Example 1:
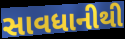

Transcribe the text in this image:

સાવધાનીથી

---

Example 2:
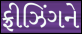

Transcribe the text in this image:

ફ્રીઝિંગને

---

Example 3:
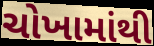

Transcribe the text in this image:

ચોખામાંથી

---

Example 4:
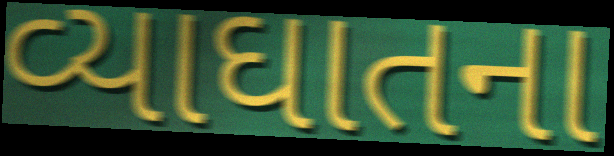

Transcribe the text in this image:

વ્યાઘાતના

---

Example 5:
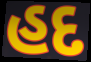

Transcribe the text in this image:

હદ